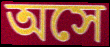
অসে